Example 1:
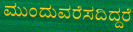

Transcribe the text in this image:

ಮುಂದುವರೆಸದಿದ್ದರೆ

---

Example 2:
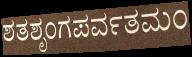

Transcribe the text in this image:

ಶತಶೃಂಗಪರ್ವತಮಂ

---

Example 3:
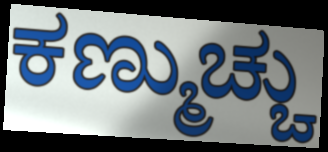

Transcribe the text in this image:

ಕಣ್ಮುಚ್ಚು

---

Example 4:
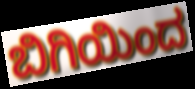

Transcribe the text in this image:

ಬಿಗಿಯಿಂದ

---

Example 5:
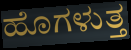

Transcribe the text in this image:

ಹೊಗಳುತ್ತ